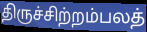
திருச்சிற்றம்பலத்